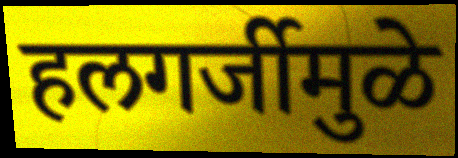
हलगर्जीमुळे